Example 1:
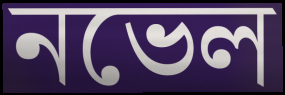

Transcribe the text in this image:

নভেল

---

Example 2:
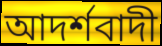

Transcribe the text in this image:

আদর্শবাদী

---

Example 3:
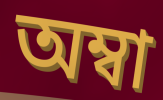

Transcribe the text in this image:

অম্বা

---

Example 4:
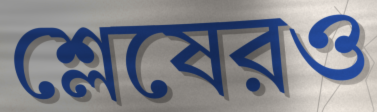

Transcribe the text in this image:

শ্লেষেরও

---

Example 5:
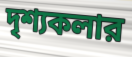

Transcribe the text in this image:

দৃশ্যকলার